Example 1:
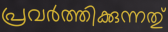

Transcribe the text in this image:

പ്രവർത്തിക്കുന്നതു്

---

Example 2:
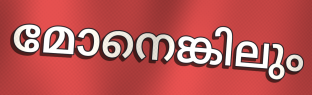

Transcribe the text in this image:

മോനെങ്കിലും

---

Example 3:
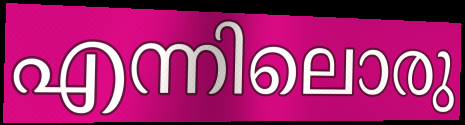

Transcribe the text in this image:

എന്നിലൊരു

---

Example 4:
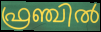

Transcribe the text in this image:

ഫ്രഞ്ചിൽ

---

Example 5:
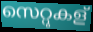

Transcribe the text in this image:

സെറ്റുകള്